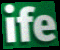
ife